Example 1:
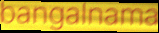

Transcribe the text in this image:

bangalnama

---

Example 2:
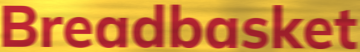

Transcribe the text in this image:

Breadbasket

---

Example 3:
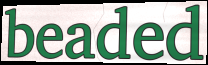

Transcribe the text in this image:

beaded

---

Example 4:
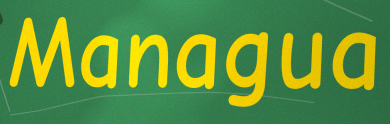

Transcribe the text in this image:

Managua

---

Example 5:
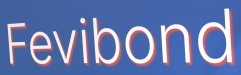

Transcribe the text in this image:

Fevibond